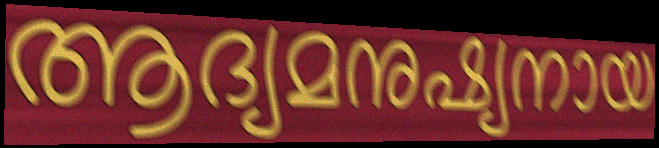
ആദ്യമനുഷ്യനായ